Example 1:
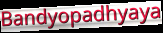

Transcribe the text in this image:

Bandyopadhyaya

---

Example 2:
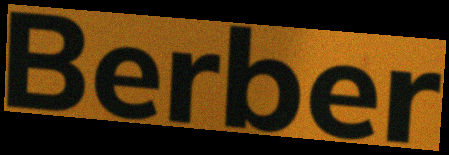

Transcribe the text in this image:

Berber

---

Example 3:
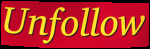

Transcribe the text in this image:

Unfollow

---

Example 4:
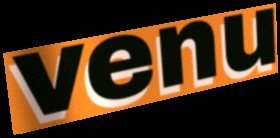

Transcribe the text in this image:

venu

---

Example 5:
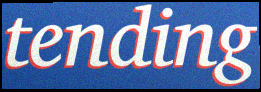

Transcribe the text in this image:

tending